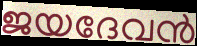
ജയദേവൻ